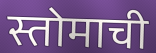
स्तोमाची